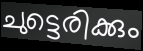
ചുട്ടെരിക്കും